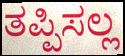
ತಪ್ಪಿಸಲ್ಲ